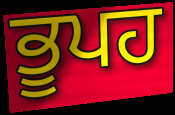
ਭੂਪਹ